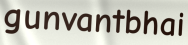
gunvantbhai